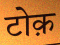
टोक़